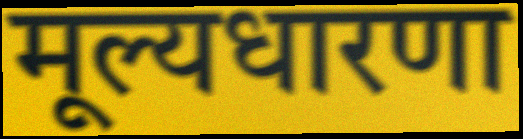
मूल्यधारणा